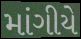
માંગીયે